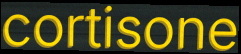
cortisone